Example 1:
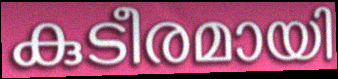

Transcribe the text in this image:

കുടീരമായി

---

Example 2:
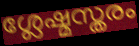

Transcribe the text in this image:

ശ്ലേഷ്മസ്തരം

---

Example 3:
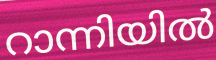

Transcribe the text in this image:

റാന്നിയിൽ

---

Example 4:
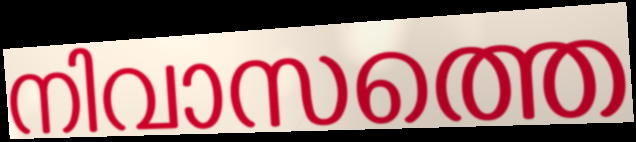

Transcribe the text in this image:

നിവാസത്തെ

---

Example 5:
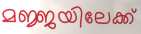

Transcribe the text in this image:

മജ്ജയിലേക്ക്